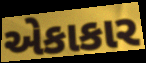
એકાકાર